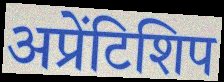
अप्रेंटिशिप